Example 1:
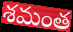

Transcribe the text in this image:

శమంత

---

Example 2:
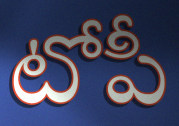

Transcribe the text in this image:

టోపీ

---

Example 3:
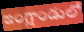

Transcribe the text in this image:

ఇంగ్లాండులో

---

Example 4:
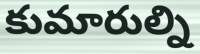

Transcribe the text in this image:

కుమారుల్ని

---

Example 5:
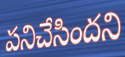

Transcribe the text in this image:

పనిచేసిందని